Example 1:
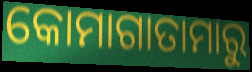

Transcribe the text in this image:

କୋମାଗାତାମାରୁ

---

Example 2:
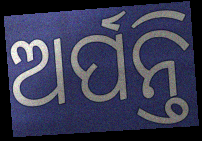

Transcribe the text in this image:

ଅର୍ପନ୍ତି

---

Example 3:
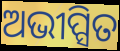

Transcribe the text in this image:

ଅଭୀପ୍ସିତ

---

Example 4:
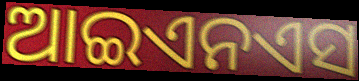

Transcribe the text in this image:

ଆଇଏନଏସ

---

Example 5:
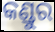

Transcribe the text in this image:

କଣ୍ଡୁର